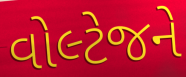
વોલ્ટેજને